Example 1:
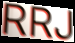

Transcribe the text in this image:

RRJ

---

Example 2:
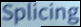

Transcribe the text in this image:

Splicing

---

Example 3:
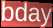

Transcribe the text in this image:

bday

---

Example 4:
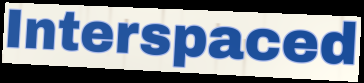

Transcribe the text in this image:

Interspaced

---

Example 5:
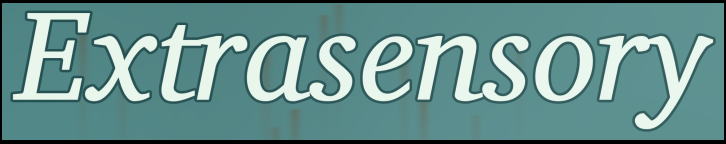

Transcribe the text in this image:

Extrasensory